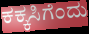
ಕಕ್ಕಸಿಗೆಂದು